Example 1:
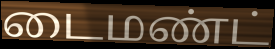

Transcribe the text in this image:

டைமண்ட்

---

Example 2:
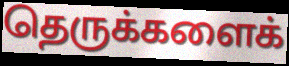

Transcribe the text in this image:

தெருக்களைக்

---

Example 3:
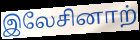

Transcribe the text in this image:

இலேசினாற்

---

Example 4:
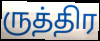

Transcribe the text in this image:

ருத்திர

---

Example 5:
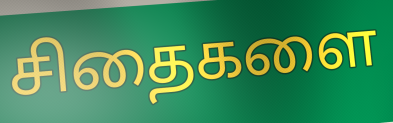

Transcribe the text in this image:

சிதைகளை